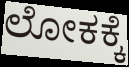
ಲೋಕಕ್ಕೆ